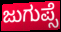
ಜುಗುಪ್ಸೆ